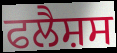
ਫਲੈਸ਼ਸ